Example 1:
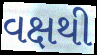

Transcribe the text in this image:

વક્ષથી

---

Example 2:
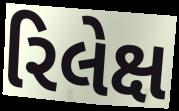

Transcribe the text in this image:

રિલેક્ષ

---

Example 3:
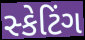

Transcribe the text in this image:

સ્કેટિંગ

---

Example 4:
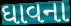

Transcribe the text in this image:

ઘાવના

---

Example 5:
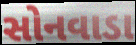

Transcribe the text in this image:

સોનવાડા